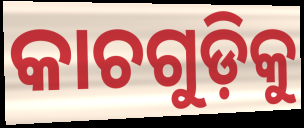
କାଚଗୁଡ଼ିକୁ